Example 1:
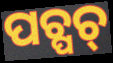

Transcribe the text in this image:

ପଚ୍ପଚ୍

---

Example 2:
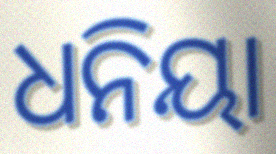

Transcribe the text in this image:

ଧନିୟା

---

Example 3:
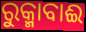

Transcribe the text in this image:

ରୁକ୍ମାବାଈ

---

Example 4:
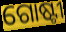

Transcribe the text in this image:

ଗୋଷ୍ଟୀ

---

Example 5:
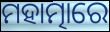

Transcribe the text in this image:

ମହାତ୍ମାରେ